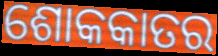
ଶୋକକାତର